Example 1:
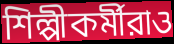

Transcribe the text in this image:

শিল্পীকর্মীরাও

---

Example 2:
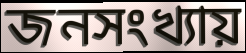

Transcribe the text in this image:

জনসংখ্যায়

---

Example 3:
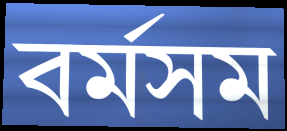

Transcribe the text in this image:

বর্মসম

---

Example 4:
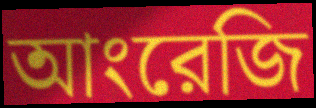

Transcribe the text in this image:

আংরেজি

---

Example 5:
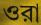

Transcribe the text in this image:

ওরা